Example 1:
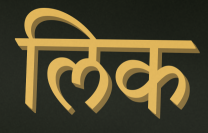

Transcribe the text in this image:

लिक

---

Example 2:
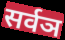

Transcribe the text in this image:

सर्वञ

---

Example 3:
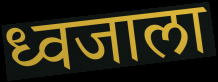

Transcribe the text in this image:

ध्वजाला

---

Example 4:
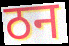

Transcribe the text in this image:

ठन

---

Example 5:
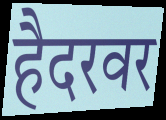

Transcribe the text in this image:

हैदरवर